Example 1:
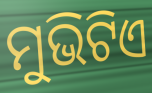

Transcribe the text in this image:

ମୁଭିଟିଏ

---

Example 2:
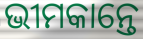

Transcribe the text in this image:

ଭୀମକାନ୍ତେ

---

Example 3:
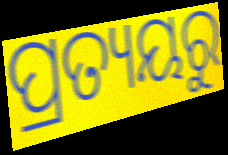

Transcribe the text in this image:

ପ୍ରତ୍ୟୟରୁ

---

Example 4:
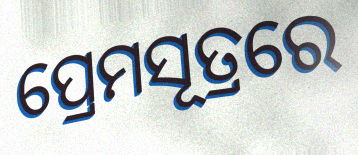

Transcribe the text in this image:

ପ୍ରେମସୂତ୍ରରେ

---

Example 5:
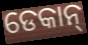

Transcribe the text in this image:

ଡେକାନ୍